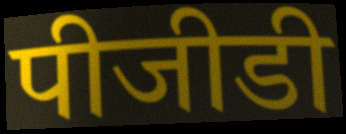
पीजीडी